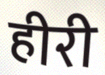
हीरी